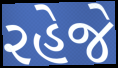
રહેજે